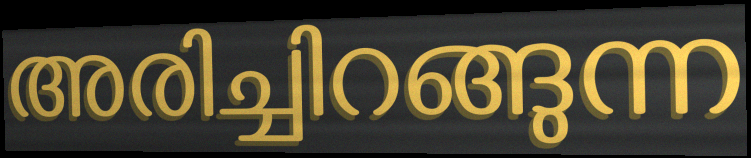
അരിച്ചിറങ്ങുന്ന